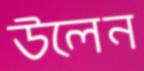
উলেন